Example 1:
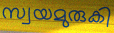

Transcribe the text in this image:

സ്വയമുരുകി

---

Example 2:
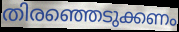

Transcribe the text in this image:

തിരഞ്ഞെടുക്കണം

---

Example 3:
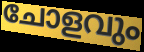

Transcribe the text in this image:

ചോളവും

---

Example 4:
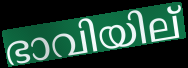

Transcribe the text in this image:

ഭാവിയില്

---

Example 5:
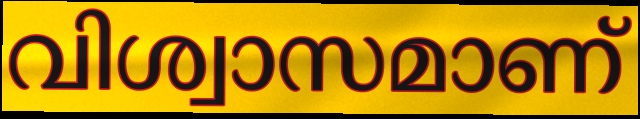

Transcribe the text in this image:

വിശ്വാസമാണ്